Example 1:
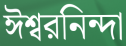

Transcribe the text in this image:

ঈশ্বরনিন্দা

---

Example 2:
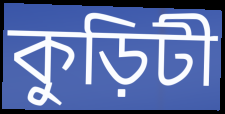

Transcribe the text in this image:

কুড়িটী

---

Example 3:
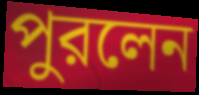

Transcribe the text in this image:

পুরলেন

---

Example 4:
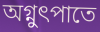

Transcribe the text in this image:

অগ্নুৎপাতে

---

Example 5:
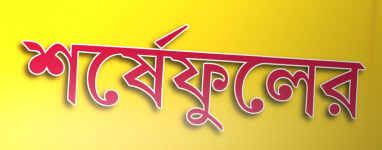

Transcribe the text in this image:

শর্ষেফুলের